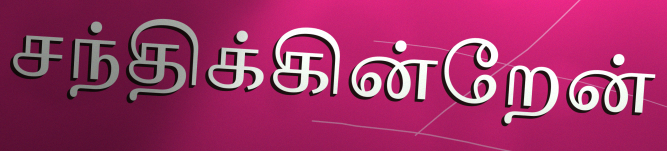
சந்திக்கின்றேன்